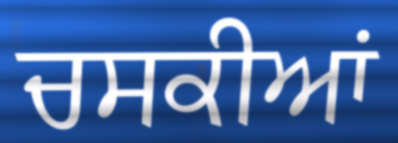
ਚਸਕੀਆਂ